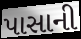
પાસાની